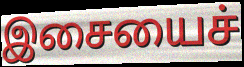
இசையைச்